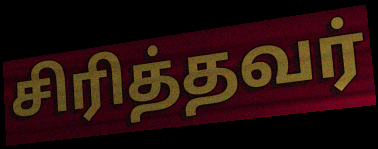
சிரித்தவர்